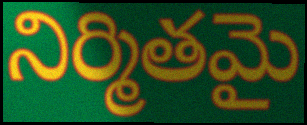
నిర్మితమై